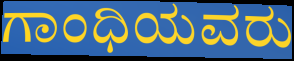
ಗಾಂಧಿಯವರು